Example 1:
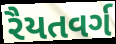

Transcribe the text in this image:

રૈયતવર્ગ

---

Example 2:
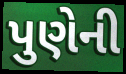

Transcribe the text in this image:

પુણેની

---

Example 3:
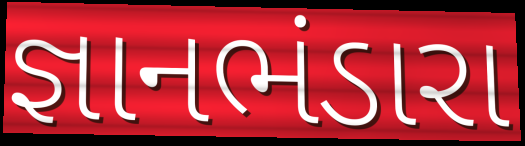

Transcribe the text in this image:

જ્ઞાનભંડારા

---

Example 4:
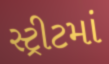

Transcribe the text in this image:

સ્ટ્રીટમાં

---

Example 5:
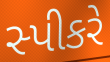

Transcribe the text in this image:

સ્પીકરે